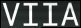
VIIA